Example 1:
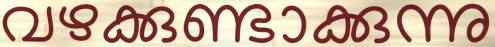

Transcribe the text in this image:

വഴക്കുണ്ടാക്കുന്നു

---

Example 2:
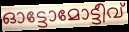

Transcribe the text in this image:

ഓട്ടോമോട്ടീവ്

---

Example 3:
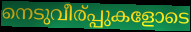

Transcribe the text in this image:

നെടുവീര്പ്പുകളോടെ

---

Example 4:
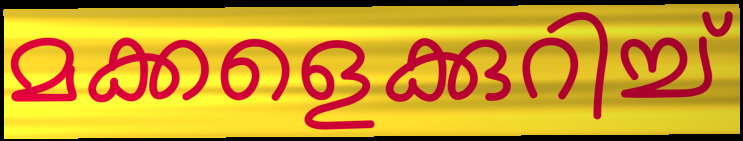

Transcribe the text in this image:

മക്കളെക്കുറിച്ച്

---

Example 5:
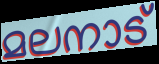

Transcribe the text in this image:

മലനാട്